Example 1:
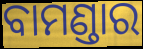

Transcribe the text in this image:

ବାମଣ୍ଡାର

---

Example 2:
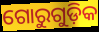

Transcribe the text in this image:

ଗୋରୁଗୁଡ଼ିକ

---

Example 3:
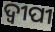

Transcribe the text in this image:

ଦ୍ୱୀପୀ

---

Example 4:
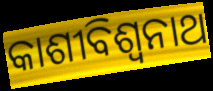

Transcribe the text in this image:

କାଶୀବିଶ୍ୱନାଥ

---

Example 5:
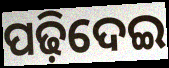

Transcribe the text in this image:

ପଢ଼ିଦେଇ